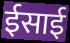
ईसाई